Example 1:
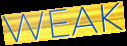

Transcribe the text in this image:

WEAK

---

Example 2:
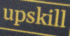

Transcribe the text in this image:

upskill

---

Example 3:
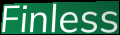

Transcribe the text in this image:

Finless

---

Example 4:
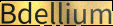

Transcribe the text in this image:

Bdellium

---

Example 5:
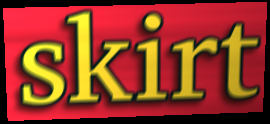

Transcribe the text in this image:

skirt